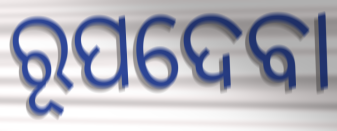
ରୂପଦେବା